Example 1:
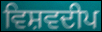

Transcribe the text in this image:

ਵਿਸ਼ਵਦੀਪ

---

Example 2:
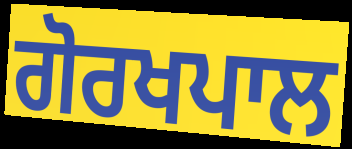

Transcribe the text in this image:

ਗੋਰਖਪਾਲ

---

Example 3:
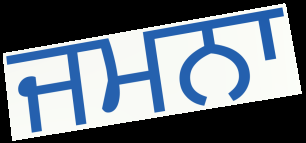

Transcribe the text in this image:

ਜਮਨਾ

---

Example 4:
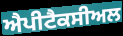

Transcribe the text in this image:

ਐਪੀਟੈਕਸੀਅਲ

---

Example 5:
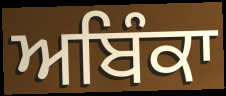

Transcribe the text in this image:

ਅਬਿੰਕਾ